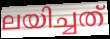
ലയിച്ചത്